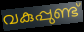
വകുപ്പുണ്ട്